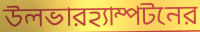
উলভারহ্যাম্পটনের